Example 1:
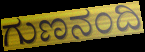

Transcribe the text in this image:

ಗುಣನಂದಿ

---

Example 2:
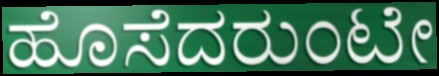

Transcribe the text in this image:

ಹೊಸೆದರುಂಟೇ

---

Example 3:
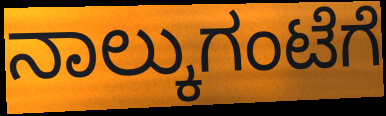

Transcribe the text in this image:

ನಾಲ್ಕುಗಂಟೆಗೆ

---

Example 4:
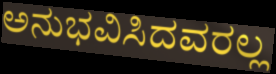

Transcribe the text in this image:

ಅನುಭವಿಸಿದವರಲ್ಲ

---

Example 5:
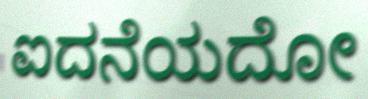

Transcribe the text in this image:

ಐದನೆಯದೋ